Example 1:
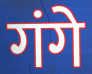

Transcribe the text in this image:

गंगे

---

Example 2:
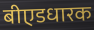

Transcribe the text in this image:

बीएडधारक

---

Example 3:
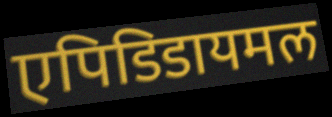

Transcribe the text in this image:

एपिडिडायमल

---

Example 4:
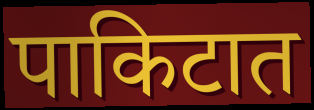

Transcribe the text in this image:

पाकिटात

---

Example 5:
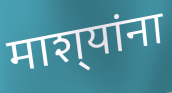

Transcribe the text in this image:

माश्यांना